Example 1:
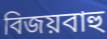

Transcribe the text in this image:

বিজয়বাহু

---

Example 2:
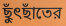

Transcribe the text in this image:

ছুঁৎছাঁতের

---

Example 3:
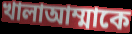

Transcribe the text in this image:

খালাআম্মাকে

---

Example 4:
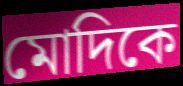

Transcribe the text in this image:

মোদিকে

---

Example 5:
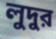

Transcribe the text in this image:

লুদুর